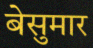
बेसुमार